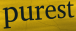
purest